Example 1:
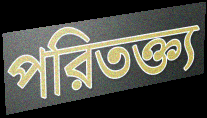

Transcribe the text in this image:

পরিতক্ত্য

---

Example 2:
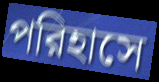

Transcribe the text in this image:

পরিহাসে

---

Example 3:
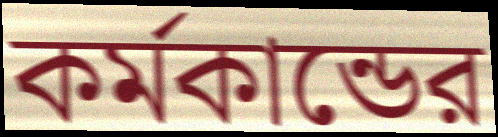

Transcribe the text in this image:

কর্মকান্ডের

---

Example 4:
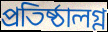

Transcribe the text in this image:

প্রতিষ্ঠালগ্ন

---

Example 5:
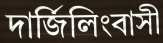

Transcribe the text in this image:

দার্জিলিংবাসী